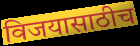
विजयासाठीच